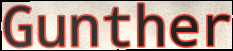
Gunther